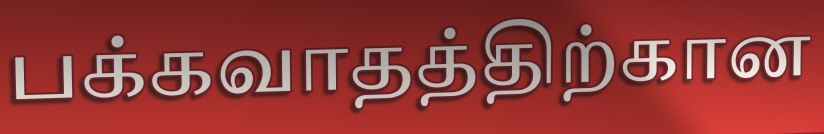
பக்கவாதத்திற்கான